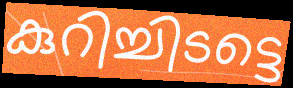
കുറിച്ചിടട്ടെ